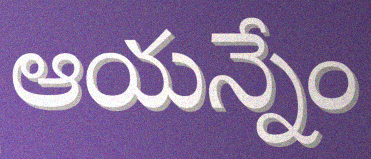
ఆయన్నేం